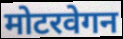
मोटरवेगन